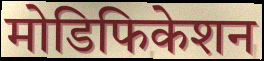
मोडिफिकेशन